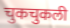
चुकचुकली